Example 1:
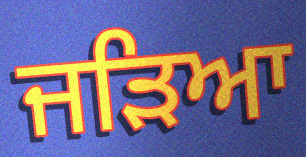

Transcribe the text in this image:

ਜੜਿਆ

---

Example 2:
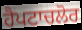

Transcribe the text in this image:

ਹੈਪਟਾਚਲੋਰ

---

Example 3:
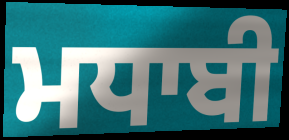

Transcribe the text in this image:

ਮਧਾਬੀ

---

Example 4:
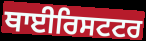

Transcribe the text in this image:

ਥਾਈਰਿਸਟਟਰ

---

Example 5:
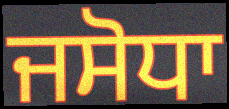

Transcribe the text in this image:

ਜਸੋਧਾ